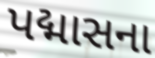
પદ્માસના